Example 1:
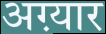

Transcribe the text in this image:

अग़्यार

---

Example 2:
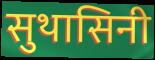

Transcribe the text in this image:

सुथासिनी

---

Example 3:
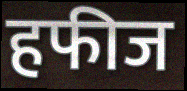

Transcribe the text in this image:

हफीज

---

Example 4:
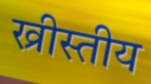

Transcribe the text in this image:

ख्रीस्तीय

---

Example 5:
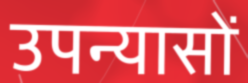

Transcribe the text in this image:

उपन्यासों